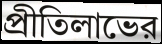
প্রীতিলাভের